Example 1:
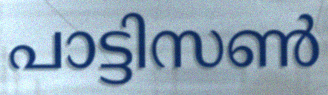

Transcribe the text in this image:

പാട്ടിസൺ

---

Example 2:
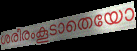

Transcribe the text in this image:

ശരീരംകൂടാതെയോ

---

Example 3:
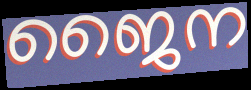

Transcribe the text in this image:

ജൈന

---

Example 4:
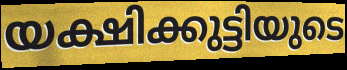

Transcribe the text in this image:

യക്ഷിക്കുട്ടിയുടെ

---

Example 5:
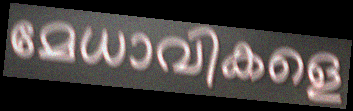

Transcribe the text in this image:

മേധാവികളെ